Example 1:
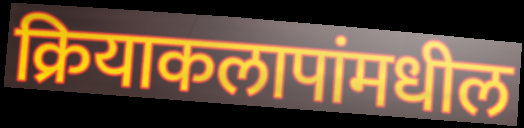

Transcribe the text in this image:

क्रियाकलापांमधील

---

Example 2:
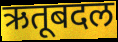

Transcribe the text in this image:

ऋतूबदल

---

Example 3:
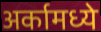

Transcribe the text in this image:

अर्कामध्ये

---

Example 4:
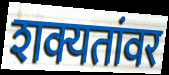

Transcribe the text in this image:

शक्यतांवर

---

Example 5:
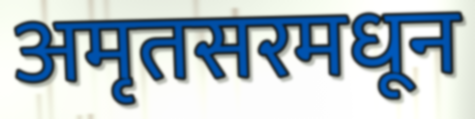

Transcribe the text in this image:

अमृतसरमधून